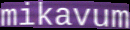
mikavum